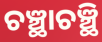
ଚଞ୍ଛାଚଞ୍ଛି